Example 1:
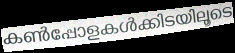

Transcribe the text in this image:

കൺപ്പോളകൾക്കിടയിലൂടെ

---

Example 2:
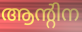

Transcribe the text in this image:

ആന്റിന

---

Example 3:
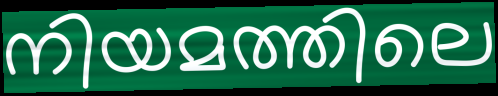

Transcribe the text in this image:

നിയമത്തിലെ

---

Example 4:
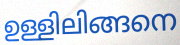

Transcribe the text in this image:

ഉള്ളിലിങ്ങനെ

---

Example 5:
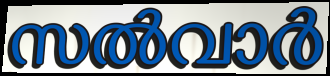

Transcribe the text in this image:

സൽവാർ